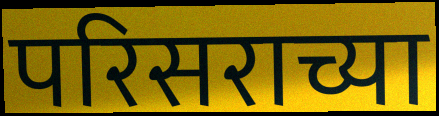
परिसराच्या